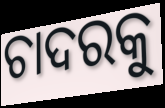
ଚାଦରକୁ